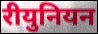
रीयुनियन